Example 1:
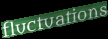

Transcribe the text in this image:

fluctuations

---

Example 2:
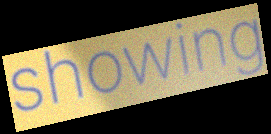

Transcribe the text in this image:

showing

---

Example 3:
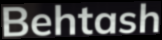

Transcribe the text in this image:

Behtash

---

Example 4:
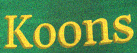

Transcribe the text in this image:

Koons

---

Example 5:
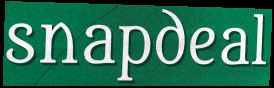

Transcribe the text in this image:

snapdeal